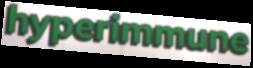
hyperimmune